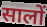
सालों